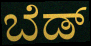
ಬೆಡ್